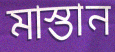
মাস্তান